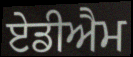
ਏਡੀਐਮ